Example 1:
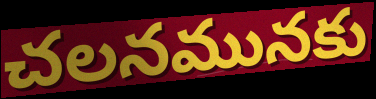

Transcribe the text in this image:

చలనమునకు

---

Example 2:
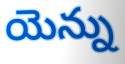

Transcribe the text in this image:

యెన్ను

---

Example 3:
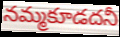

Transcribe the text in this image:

నమ్మకూడదనీ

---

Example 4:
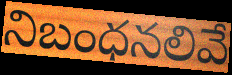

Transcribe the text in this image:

నిబంధనలివే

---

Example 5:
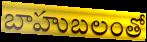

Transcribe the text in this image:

బాహుబలంతో